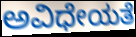
ಅವಿಧೇಯತೆ